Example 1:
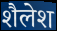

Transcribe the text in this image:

शैलेश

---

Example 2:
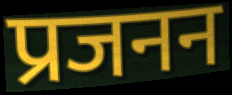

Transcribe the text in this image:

प्रजनन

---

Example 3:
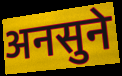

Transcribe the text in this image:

अनसुने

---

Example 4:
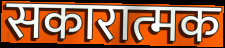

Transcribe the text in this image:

सकारात्‍मक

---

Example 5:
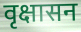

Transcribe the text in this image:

वृक्षासन